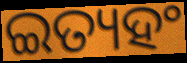
ଇତ୍ୟହଂ